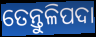
ତେନ୍ତୁଳିପଦା